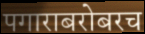
पगाराबरोबरच